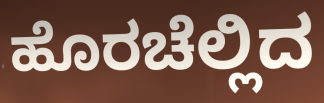
ಹೊರಚೆಲ್ಲಿದ